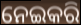
ନେଇକରି